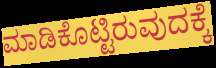
ಮಾಡಿಕೊಟ್ಟಿರುವುದಕ್ಕೆ